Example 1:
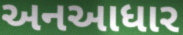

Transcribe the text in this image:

અનઆધાર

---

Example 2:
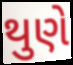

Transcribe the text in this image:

થુણે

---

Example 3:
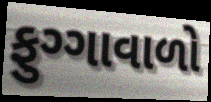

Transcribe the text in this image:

ફુગ્ગાવાળો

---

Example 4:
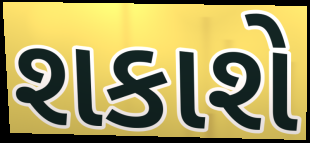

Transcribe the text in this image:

શકાશે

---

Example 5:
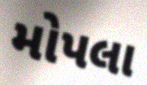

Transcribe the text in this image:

મોપલા